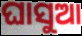
ଘାସୁଆ